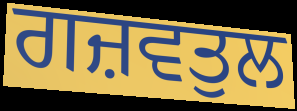
ਗਜ਼ਵਤੁਲ